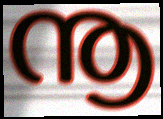
നൂ